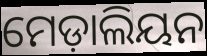
ମେଡ଼ାଲିୟନ